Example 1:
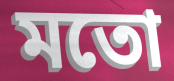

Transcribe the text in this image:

মতো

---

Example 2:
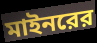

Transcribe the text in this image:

মাইনরের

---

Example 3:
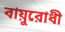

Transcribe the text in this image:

বায়ুরোধী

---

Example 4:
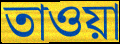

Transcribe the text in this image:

তাওয়া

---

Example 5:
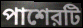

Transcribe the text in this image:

পাশেরটি